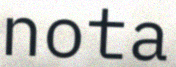
nota